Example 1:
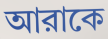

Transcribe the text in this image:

আরাকে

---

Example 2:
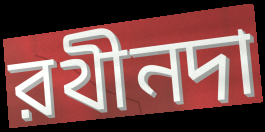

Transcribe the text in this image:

রথীনদা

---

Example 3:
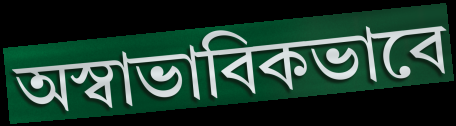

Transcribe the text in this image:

অস্বাভাবিকভাবে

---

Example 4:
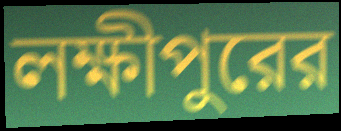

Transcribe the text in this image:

লক্ষীপুরের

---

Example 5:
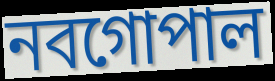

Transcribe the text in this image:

নবগোপাল